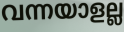
വന്നയാളല്ല